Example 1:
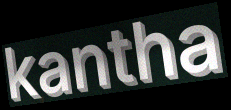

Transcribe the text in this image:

kantha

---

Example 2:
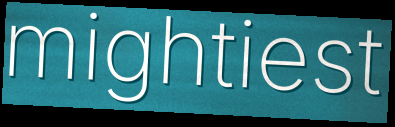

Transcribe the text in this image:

mightiest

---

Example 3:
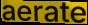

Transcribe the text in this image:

aerate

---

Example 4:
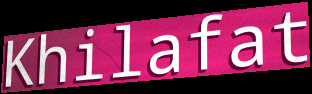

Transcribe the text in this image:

Khilafat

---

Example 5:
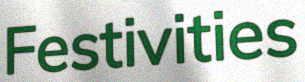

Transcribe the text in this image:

Festivities